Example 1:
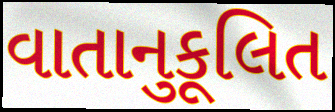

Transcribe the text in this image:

વાતાનુકૂલિત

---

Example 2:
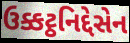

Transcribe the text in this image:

ઉક્કટ્ઠનિદ્દેસેન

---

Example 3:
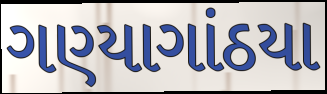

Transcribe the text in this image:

ગણ્યાગાંઠયા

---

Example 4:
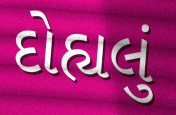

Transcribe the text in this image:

દોહ્યલું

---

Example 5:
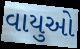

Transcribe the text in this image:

વાયુઓ